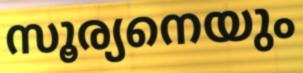
സൂര്യനെയും